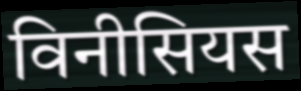
विनीसियस